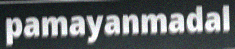
pamayanmadal